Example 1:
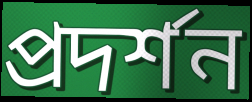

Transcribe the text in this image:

প্রদর্শন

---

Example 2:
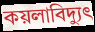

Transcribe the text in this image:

কয়লাবিদ্যুৎ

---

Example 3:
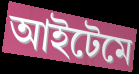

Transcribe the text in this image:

আইটেমে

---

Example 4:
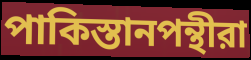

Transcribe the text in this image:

পাকিস্তানপন্থীরা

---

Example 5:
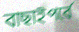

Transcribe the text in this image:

বাছাইপর্বে